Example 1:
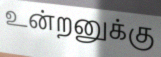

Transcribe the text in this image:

உன்றனுக்கு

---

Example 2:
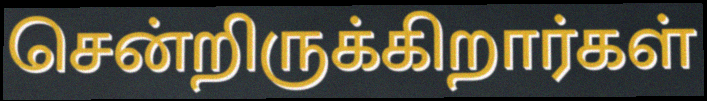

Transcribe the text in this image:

சென்றிருக்கிறார்கள்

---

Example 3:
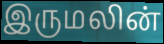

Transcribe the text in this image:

இருமலின்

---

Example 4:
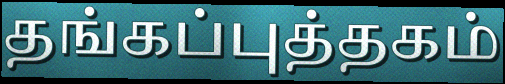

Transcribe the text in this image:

தங்கப்புத்தகம்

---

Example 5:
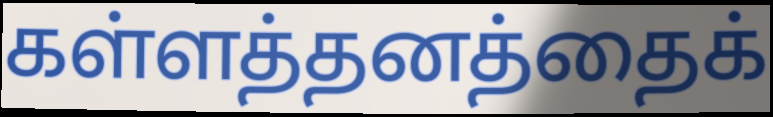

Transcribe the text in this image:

கள்ளத்தனத்தைக்